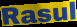
Rasul